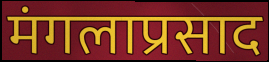
मंगलाप्रसाद